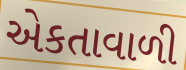
એકતાવાળી